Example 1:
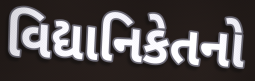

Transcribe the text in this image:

વિદ્યાનિકેતનો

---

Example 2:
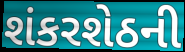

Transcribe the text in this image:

શંકરશેઠની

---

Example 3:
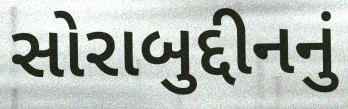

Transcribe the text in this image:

સોરાબુદ્દીનનું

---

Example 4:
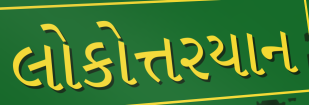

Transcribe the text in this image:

લોકોત્તરયાન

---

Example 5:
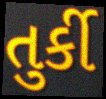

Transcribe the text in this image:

તુર્કી